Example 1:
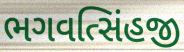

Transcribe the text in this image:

ભગવત્સિંહજી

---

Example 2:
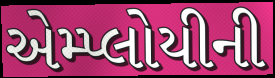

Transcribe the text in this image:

એમ્પ્લોયીની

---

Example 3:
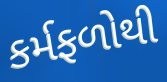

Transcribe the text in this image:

કર્મફળોથી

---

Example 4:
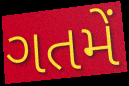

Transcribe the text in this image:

ગતમેં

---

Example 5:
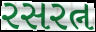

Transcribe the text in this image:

રસરત્ન